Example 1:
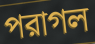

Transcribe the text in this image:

পরাগল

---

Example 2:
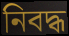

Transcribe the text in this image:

নিবদ্ধ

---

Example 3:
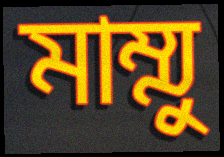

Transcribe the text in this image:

মাম্মু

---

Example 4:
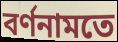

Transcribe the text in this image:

বর্ণনামতে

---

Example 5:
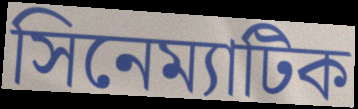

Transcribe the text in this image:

সিনেম্যাটিক